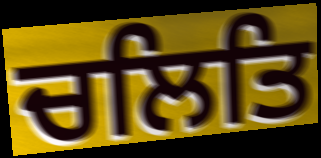
ਚਲਿਤਿ